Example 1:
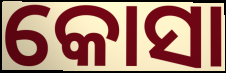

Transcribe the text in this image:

କୋସା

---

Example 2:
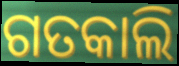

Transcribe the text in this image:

ଗତକାଲି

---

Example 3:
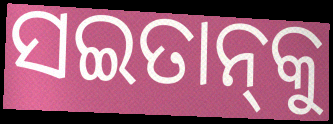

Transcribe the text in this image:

ସଇତାନ୍‌କୁ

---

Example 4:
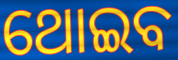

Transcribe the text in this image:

ଥୋଇବ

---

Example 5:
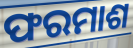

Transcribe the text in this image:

ଫରମାଶ